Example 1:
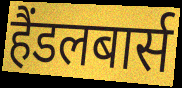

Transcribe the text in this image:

हैंडलबार्स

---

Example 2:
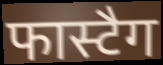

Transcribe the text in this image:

फास्टैग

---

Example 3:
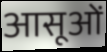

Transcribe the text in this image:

आसूओं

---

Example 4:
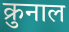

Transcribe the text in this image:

क्रुनाल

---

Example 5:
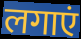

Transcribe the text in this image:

लगाएं